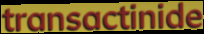
transactinide